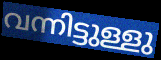
വന്നിട്ടുള്ളു